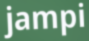
jampi